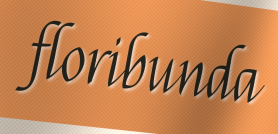
floribunda